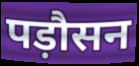
पड़ौसन